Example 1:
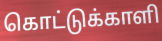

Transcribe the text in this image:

கொட்டுக்காளி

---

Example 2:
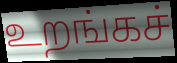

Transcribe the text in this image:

உறங்கச்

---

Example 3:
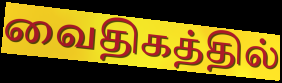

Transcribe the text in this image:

வைதிகத்தில்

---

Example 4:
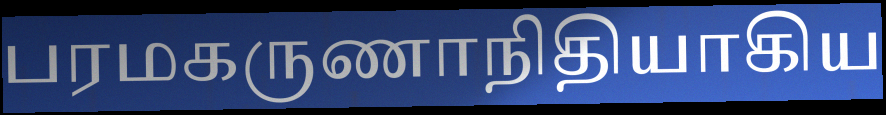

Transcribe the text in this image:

பரமகருணாநிதியாகிய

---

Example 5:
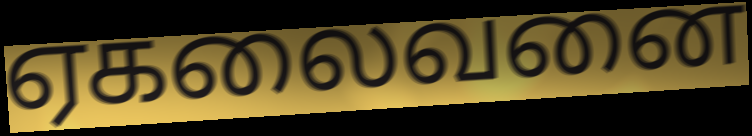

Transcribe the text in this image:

ஏகலைவனை